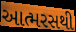
આત્મરસથી